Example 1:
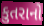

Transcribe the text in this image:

કુતરાનો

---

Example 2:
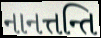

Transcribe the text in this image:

નાનત્તન્તિ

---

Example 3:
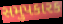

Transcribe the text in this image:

સમુપકારક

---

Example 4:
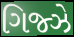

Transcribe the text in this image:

ગિજ્ઝે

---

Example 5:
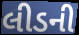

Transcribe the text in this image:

લીડની